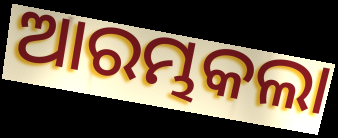
ଆରମ୍ଭକଲା